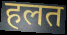
हलत